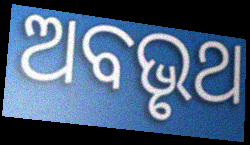
ଅବଭୃଥ